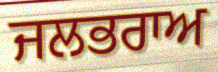
ਜਲਭਰਾਅ